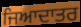
ਜਿਆਦਾਤਰ